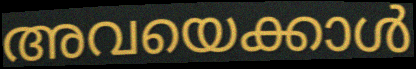
അവയെക്കാൾ